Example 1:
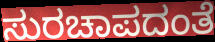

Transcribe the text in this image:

ಸುರಚಾಪದಂತೆ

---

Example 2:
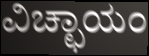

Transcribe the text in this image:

ವಿಚ್ಛಾಯಂ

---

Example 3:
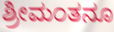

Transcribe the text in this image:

ಶ್ರೀಮಂತನೂ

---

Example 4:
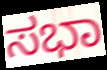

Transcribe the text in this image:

ಸಭಾ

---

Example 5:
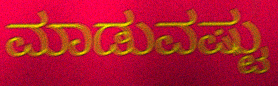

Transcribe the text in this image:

ಮಾಡುವಷ್ಟು